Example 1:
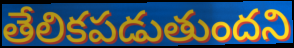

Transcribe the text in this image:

తేలికపడుతుందని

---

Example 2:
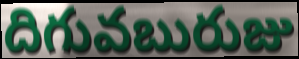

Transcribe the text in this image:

దిగువబురుజు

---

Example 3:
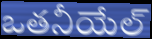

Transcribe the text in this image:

ఒతనీయేల్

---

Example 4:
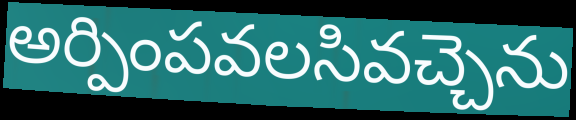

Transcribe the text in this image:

అర్పింపవలసివచ్చెను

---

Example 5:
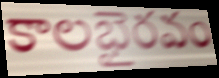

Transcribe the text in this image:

కాలభైరవం